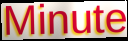
Minute